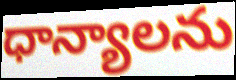
ధాన్యాలను